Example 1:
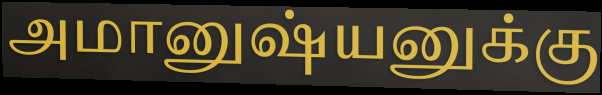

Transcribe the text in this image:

அமானுஷ்யனுக்கு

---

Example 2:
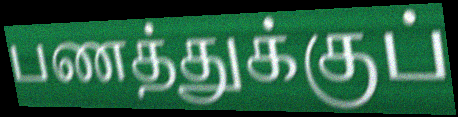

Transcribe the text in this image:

பணத்துக்குப்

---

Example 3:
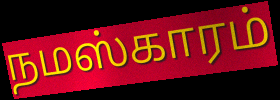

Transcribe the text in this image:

நமஸ்காரம்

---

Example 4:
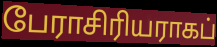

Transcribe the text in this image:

பேராசிரியராகப்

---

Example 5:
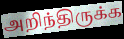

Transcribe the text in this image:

அறிந்திருக்க